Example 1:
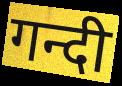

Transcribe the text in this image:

गन्दी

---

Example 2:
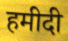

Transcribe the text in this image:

हमीदी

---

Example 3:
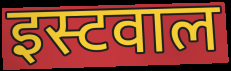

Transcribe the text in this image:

इस्टवाल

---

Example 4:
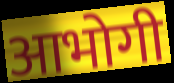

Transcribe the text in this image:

आभोगी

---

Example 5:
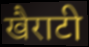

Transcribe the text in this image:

खैराटी